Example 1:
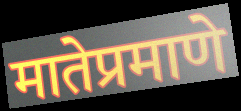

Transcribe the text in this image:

मातेप्रमाणे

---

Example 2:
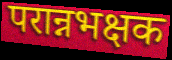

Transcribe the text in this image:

परान्नभक्षक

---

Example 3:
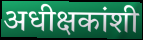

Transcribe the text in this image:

अधीक्षकांशी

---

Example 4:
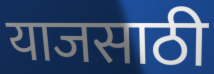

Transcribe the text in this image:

याजसाठी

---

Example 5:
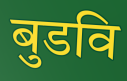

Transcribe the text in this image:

बुडवि